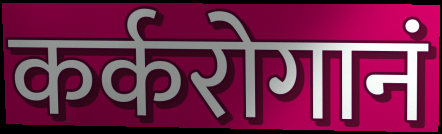
कर्करोगानं